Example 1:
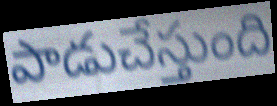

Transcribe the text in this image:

పాడుచేస్తుంది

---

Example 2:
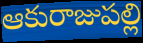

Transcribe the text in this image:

ఆకురాజుపల్లి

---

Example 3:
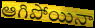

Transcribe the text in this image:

ఆగిపోయినా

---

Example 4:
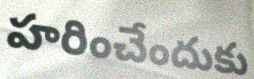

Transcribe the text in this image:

హరించేందుకు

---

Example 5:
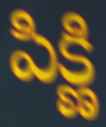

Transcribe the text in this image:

పిక్ణి